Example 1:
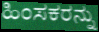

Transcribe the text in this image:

ಹಿಂಸಕರನ್ನು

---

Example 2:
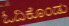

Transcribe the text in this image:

ಓದಿಕೊಂಡು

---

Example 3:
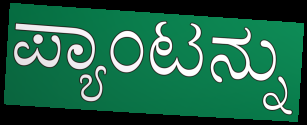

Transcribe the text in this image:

ಪ್ಯಾಂಟನ್ನು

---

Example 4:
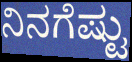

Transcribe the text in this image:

ನಿನಗೆಷ್ಟು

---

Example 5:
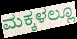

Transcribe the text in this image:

ಮಕ್ಕಳಲ್ಲೂ